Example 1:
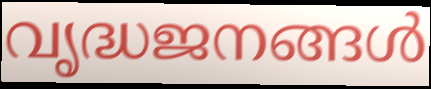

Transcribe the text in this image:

വൃദ്ധജനങ്ങൾ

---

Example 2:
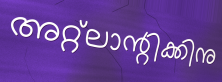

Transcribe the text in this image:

അറ്റ്ലാന്റിക്കിനു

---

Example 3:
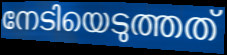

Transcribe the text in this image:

നേടിയെടുത്തത്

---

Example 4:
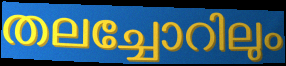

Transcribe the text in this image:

തലച്ചോറിലും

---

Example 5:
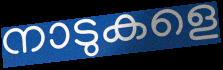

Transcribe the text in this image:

നാടുകളെ